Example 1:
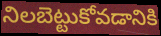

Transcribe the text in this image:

నిలబెట్టుకోవడానికి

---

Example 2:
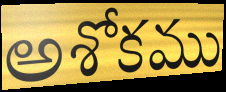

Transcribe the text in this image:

అశోకము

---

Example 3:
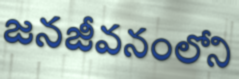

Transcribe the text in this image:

జనజీవనంలోని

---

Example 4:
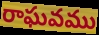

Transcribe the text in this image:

రాఘవము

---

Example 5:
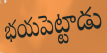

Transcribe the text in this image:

భయపెట్టాడు